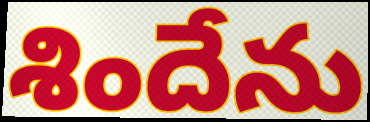
శిందేను